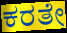
ಕರತೇ